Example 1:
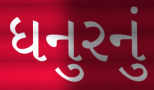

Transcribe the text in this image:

ધનુરનું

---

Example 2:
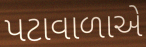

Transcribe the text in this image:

પટાવાળાએ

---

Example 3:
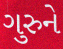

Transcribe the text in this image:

ગુરુને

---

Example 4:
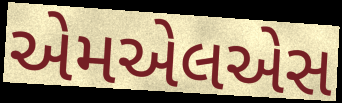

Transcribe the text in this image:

એમએલએસ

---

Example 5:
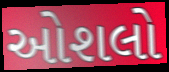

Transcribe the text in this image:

ઓશલો